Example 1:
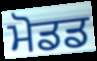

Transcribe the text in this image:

ਮੋਡਡ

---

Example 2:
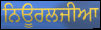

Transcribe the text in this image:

ਨਿਊਰਲਜੀਆ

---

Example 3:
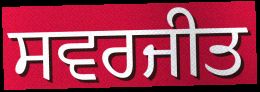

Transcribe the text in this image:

ਸਵਰਜੀਤ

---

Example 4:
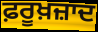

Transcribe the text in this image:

ਫ਼ਰੂਖ਼ਜ਼ਾਦ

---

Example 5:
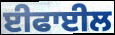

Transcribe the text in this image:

ਈਫਾਈਲ